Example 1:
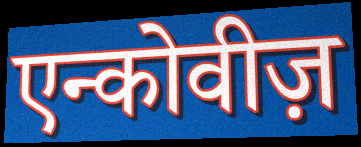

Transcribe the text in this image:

एन्कोवीज़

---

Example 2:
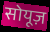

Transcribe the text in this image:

सोयूज़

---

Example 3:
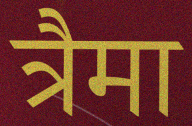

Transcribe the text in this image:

त्रैमा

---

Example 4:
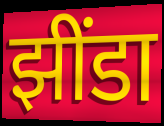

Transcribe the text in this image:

झींडा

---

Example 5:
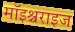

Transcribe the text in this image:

मॉइश्चराइज